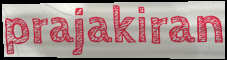
prajakiran